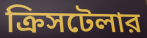
ক্রিসটেলার